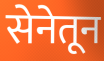
सेनेतून